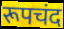
रूपचंद